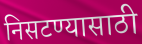
निसटण्यासाठी